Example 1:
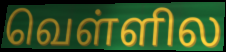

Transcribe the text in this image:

வெள்ளில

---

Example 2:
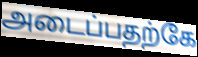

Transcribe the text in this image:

அடைப்பதற்கே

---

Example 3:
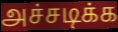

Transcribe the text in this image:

அச்சடிக்க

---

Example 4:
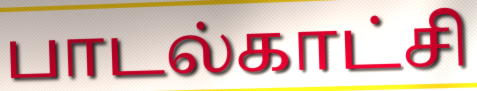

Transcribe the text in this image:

பாடல்காட்சி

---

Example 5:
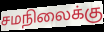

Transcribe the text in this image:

சமநிலைக்கு